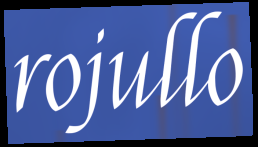
rojullo